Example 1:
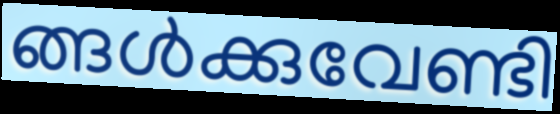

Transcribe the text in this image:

ങ്ങൾക്കുവേണ്ടി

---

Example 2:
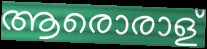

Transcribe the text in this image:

ആരൊരാള്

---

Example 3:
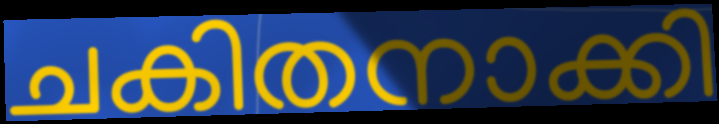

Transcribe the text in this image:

ചകിതനാക്കി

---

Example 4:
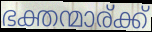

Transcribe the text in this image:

ഭക്തന്മാര്ക്ക്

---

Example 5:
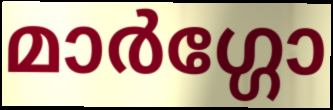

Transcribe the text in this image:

മാർഗ്ഗോ